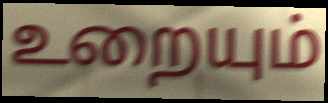
உறையும்